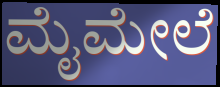
ಮೈಮೇಲೆ